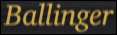
Ballinger